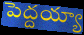
పెద్దయ్యా